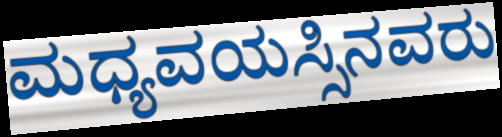
ಮಧ್ಯವಯಸ್ಸಿನವರು